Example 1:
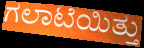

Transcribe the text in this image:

ಗಲಾಟೆಯಿತ್ತು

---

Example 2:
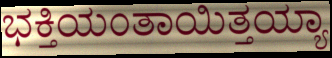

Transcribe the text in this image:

ಭಕ್ತಿಯಂತಾಯಿತ್ತಯ್ಯಾ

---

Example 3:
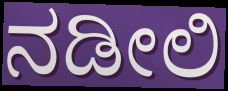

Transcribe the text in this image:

ನಡೀಲಿ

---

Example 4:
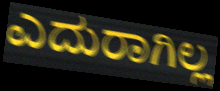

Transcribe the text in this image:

ಎದುರಾಗಿಲ್ಲ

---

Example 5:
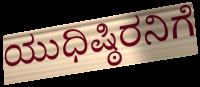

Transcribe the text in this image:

ಯುಧಿಷ್ಠಿರನಿಗೆ